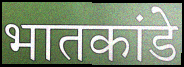
भातकांडे